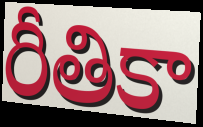
రీతికా